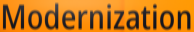
Modernization